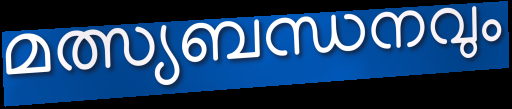
മത്സ്യബന്ധനവും